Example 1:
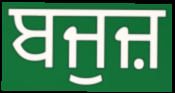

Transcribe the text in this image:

ਬਜੁਜ਼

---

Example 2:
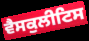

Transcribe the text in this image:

ਵੈਸਕੁਲੀਟਿਸ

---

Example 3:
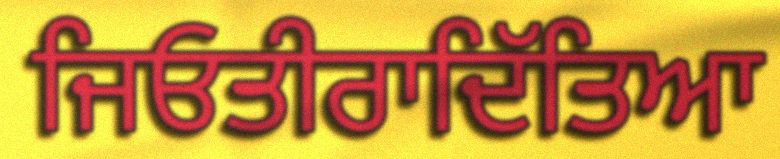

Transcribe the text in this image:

ਜਿਓਤੀਰਾਦਿੱਤਿਆ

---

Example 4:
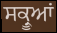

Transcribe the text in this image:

ਸਕ੍ਰੂਆਂ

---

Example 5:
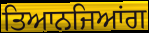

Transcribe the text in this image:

ਤਿਆਨਜਿਆਂਗ